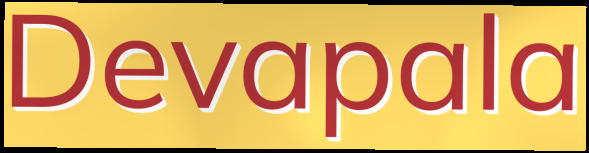
Devapala